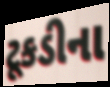
ટૂકડીના